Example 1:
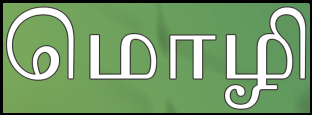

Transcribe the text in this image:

மொழி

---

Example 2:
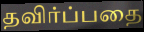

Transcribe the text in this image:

தவிர்ப்பதை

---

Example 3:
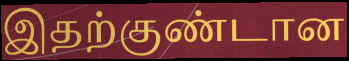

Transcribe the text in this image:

இதற்குண்டான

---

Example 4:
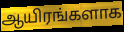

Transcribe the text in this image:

ஆயிரங்களாக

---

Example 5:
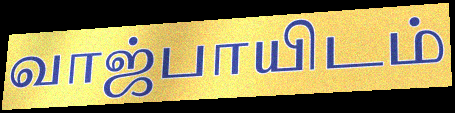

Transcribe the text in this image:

வாஜ்பாயிடம்